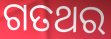
ଗତଥର